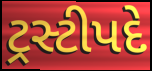
ટ્રસ્ટીપદે